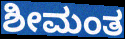
ಶೀಮಂತ